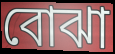
বোঝা